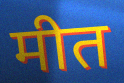
मीत